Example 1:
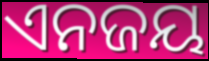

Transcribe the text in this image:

ଏନଜୟ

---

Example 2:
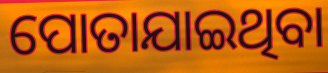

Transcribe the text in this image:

ପୋତାଯାଇଥିବା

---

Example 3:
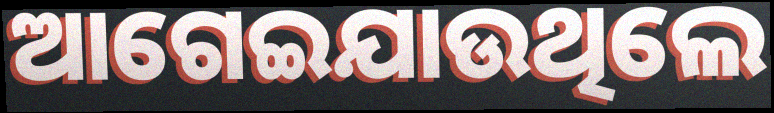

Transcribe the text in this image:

ଆଗେଇଯାଉଥିଲେ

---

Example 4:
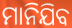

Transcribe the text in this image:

ମାନିଯିବ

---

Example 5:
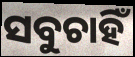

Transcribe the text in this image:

ସବୁଚାହିଁ